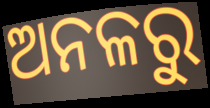
ଅନଳରୁ